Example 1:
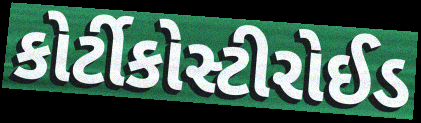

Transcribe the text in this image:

કોર્ટીકોસ્ટીરોઈડ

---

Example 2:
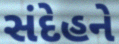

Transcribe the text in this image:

સંદેહને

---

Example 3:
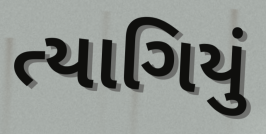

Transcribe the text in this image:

ત્યાગિયું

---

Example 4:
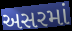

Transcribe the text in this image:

અસરમાં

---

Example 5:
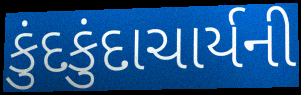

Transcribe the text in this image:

કુંદકુંદાચાર્યની